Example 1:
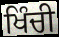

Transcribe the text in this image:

ਖਿੰਚੀ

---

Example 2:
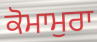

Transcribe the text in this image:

ਕੋਮਾਮੁਰਾ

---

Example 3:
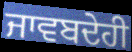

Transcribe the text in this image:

ਜਾਵਬਦੇਹੀ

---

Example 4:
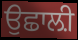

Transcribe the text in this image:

ਉਛਾਲ਼ੀ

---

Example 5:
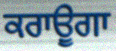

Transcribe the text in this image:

ਕਰਾਊਗਾ